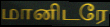
மானிடரே